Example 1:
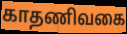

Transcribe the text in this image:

காதணிவகை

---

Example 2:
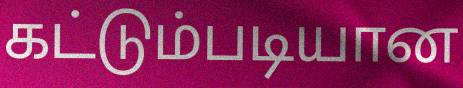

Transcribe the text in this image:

கட்டும்படியான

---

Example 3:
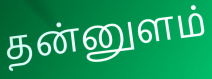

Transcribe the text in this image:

தன்னுளம்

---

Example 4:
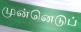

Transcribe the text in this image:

முன்னெடுப்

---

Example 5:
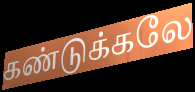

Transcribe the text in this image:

கண்டுக்கலே